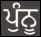
ਪੁੰਨੂ